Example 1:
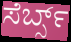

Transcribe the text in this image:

ಸೆರ್ಬ್ಸ್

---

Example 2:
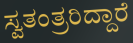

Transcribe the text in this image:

ಸ್ವತಂತ್ರರಿದ್ದಾರೆ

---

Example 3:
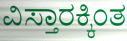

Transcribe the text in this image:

ವಿಸ್ತಾರಕ್ಕಿಂತ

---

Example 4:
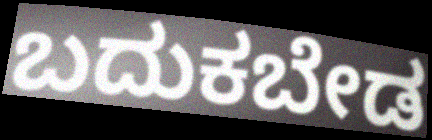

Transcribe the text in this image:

ಬದುಕಬೇಡ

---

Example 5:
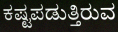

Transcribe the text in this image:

ಕಷ್ಟಪಡುತ್ತಿರುವ